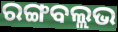
ରଙ୍ଗବଲ୍ଲଭ